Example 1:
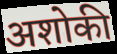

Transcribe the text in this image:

अशोकी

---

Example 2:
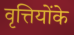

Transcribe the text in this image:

वृत्तियोंके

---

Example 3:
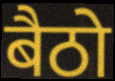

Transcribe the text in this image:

बैठो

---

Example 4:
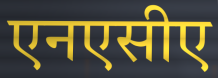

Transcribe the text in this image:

एनएसीए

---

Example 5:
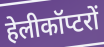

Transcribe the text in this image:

हेलीकॉप्टरों